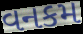
વનકમ